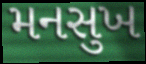
મનસુખ